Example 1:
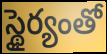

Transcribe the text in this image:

స్థైర్యంతో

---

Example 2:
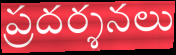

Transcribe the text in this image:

ప్రదర్శనలు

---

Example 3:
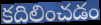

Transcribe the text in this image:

కదిలించడం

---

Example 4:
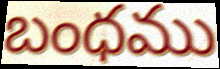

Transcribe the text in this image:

బంధము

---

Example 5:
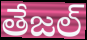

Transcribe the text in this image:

తేజల్